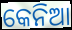
କେନିଆ